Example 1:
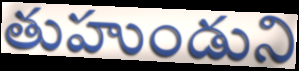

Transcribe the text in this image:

తుహుండుని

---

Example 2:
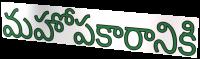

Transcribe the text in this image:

మహోపకారానికి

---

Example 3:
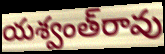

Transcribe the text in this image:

యశ్వంత్‌రావు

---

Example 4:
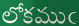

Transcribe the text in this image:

లోకముఁ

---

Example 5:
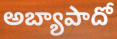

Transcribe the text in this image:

అబ్యాపాదో